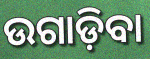
ଉଗାଡ଼ିବା